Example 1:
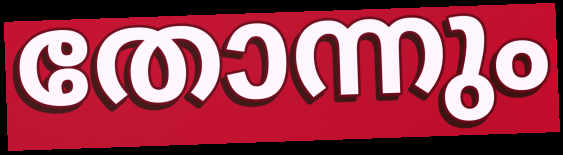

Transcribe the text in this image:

തോന്നും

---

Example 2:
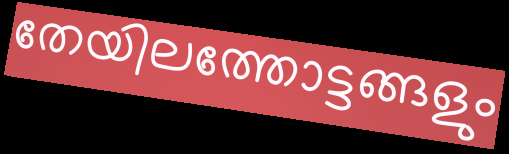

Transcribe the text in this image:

തേയിലത്തോട്ടങ്ങളും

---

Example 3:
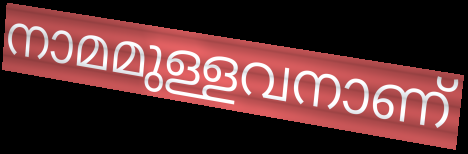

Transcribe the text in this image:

നാമമുള്ളവനാണ്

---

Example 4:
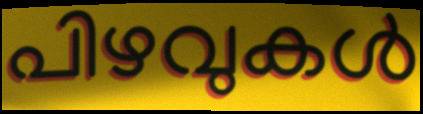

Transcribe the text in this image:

പിഴവുകൾ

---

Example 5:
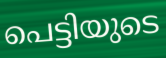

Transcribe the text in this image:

പെട്ടിയുടെ